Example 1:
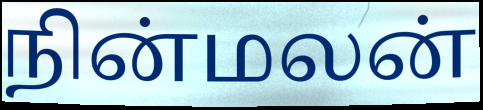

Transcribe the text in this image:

நின்மலன்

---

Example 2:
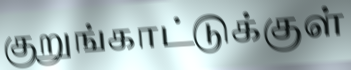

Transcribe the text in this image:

குறுங்காட்டுக்குள்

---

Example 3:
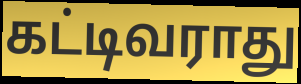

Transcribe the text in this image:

கட்டிவராது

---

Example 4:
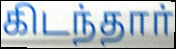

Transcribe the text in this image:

கிடந்தார்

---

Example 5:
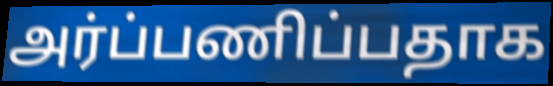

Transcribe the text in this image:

அர்ப்பணிப்பதாக